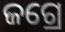
ଜଗ୍ରେ